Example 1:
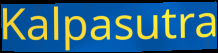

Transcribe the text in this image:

Kalpasutra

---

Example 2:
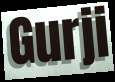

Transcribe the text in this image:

Gurji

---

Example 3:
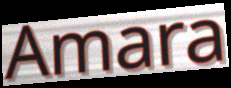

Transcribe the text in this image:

Amara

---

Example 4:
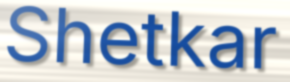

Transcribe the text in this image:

Shetkar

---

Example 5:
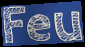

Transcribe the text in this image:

Feu